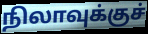
நிலாவுக்குச்